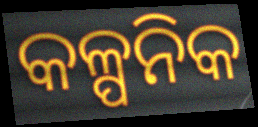
କଳ୍ପନିକ